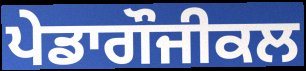
ਪੇਡਾਗੌਜੀਕਲ